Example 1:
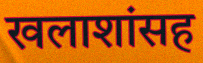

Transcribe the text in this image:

खलाशांसह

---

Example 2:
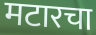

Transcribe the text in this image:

मटारचा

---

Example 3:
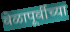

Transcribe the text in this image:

वेळापूर्वीच्या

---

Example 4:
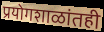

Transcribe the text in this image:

प्रयोगशाळांतही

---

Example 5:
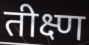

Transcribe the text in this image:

तीक्ष्ण